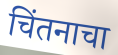
चिंतनाचा